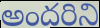
అందరిని